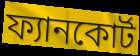
ফ্যানকোর্ট